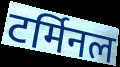
टर्मिनल